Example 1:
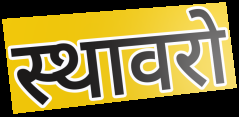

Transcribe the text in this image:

स्थावरो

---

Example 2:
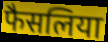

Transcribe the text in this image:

फैसलिया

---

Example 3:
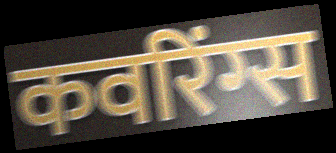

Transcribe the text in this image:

कवरिंग्स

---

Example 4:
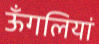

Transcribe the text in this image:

ऊँगलियां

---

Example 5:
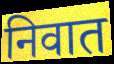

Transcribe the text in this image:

निवात